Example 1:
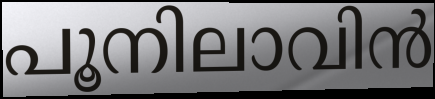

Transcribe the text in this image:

പൂനിലാവിൻ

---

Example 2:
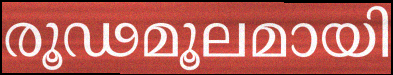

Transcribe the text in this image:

രൂഢമൂലമായി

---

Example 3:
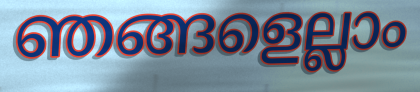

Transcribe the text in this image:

ഞങ്ങളെല്ലാം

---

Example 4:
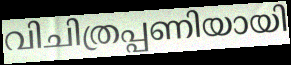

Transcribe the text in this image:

വിചിത്രപ്പണിയായി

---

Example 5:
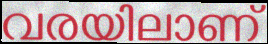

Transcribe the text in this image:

വരയിലാണ്